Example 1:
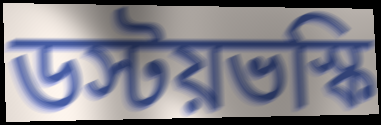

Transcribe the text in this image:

ডস্টয়ভস্কি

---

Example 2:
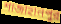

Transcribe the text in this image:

শাজাহানপুর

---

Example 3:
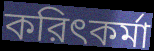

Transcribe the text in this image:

করিৎকর্মা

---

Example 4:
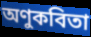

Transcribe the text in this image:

অণুকবিতা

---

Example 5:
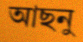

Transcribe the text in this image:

আছনু